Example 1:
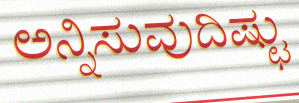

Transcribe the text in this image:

ಅನ್ನಿಸುವುದಿಷ್ಟು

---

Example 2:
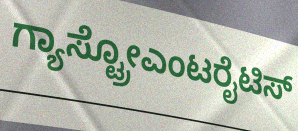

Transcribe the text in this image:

ಗ್ಯಾಸ್ಟ್ರೋಎಂಟರೈಟಿಸ್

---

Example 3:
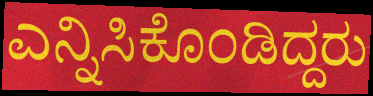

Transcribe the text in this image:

ಎನ್ನಿಸಿಕೊಂಡಿದ್ದರು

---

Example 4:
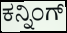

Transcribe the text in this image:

ಕನ್ನಿಂಗ್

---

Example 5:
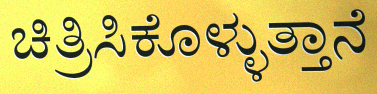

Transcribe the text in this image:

ಚಿತ್ರಿಸಿಕೊಳ್ಳುತ್ತಾನೆ